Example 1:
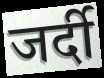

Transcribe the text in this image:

जर्दी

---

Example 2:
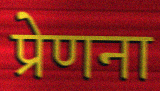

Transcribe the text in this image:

प्रेणना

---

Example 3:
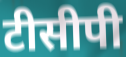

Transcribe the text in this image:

टीसीपी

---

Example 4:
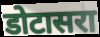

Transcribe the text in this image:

डोटासरा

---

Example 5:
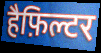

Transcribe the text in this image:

हैफ़िल्टर